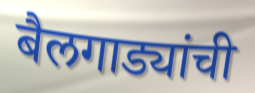
बैलगाड्यांची